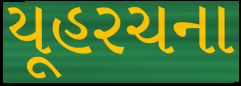
યૂહરચના